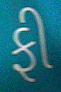
ફી